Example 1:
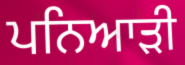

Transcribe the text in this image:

ਪਨਿਆੜੀ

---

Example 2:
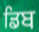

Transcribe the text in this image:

ਡਿਬ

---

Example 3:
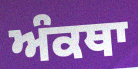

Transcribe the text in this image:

ਅੰਕਥਾ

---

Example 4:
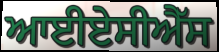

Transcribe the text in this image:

ਆਈਏਸੀਐੱਸ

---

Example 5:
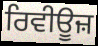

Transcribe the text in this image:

ਰਿਵੀਊਜ਼